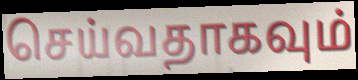
செய்வதாகவும்